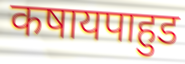
कषायपाहुड